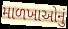
માળખાઓનું